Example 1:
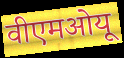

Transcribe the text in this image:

वीएमओयू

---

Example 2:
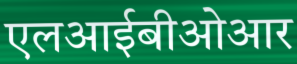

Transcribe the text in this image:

एलआईबीओआर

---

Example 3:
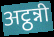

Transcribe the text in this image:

अट्ठन्नी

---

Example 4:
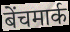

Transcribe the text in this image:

बेंचमार्क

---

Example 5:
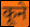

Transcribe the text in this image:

कूने